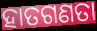
ହାତଗଣତା